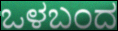
ಒಳಬಂದ